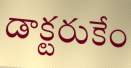
డాక్టరుకేం